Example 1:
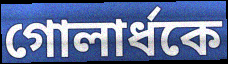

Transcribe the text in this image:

গোলার্ধকে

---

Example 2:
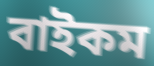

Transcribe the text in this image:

বাইকম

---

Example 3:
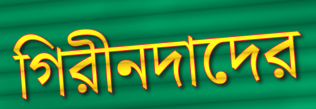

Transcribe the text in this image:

গিরীনদাদের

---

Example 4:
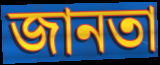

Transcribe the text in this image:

জানতা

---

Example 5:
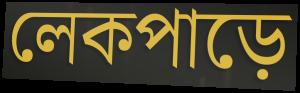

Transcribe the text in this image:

লেকপাড়ে